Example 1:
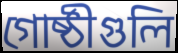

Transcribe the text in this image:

গোষ্ঠীগুলি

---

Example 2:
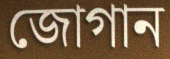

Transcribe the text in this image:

জোগান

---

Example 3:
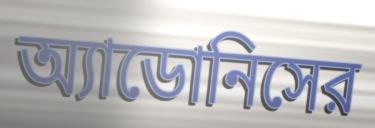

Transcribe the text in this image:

অ্যাডোনিসের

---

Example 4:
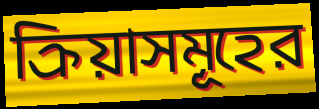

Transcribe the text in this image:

ক্রিয়াসমূহের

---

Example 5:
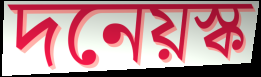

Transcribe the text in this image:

দনেয়স্ক